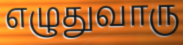
எழுதுவாரு